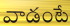
వాడంటే